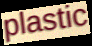
plastic